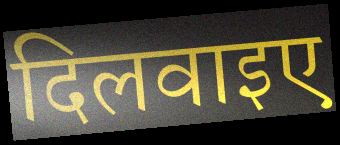
दिलवाइए